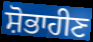
ਸ਼ੋਭਾਹੀਣ